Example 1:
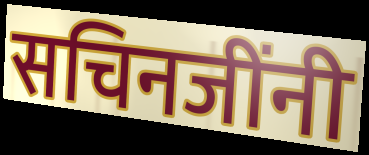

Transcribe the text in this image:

सचिनजींनी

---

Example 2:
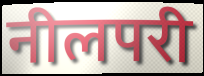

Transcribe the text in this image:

नीलपरी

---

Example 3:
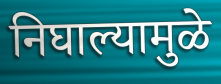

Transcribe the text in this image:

निघाल्यामुळे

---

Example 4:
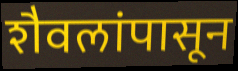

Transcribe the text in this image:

शैवलांपासून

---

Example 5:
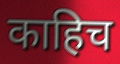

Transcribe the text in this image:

काहिच